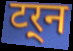
टर्न